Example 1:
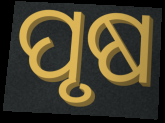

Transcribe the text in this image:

ପୃଷ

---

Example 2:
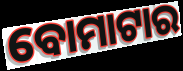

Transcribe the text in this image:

ବୋମାଟାର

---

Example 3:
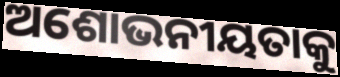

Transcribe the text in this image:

ଅଶୋଭନୀୟତାକୁ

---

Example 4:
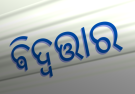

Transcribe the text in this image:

ଵିଦ୍ବତ୍ତାର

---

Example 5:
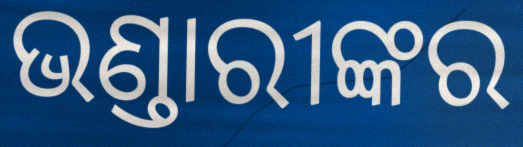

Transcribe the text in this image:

ଭଣ୍ଡାରୀଙ୍କର